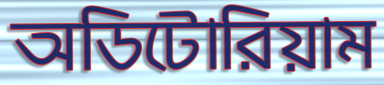
অডিটোরিয়াম